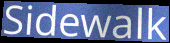
Sidewalk